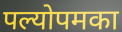
पल्योपमका